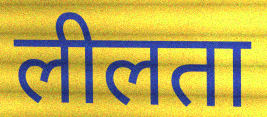
लीलता